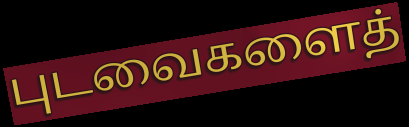
புடவைகளைத்